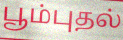
பூம்புதல்